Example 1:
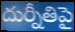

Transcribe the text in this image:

దుర్నీతిపై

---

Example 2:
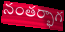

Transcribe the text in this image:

నంతర్భాగ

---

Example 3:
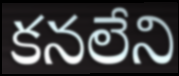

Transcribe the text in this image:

కనలేని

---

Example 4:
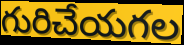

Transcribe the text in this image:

గురిచేయగల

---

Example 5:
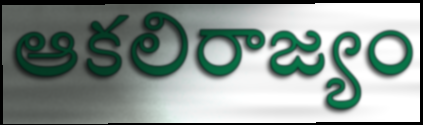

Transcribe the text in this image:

ఆకలిరాజ్యం